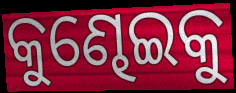
କୁଣ୍ଢେଇକୁ